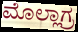
ಮೊಲ್ಲಾಗ್ರ